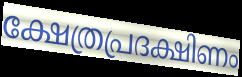
ക്ഷേത്രപ്രദക്ഷിണം